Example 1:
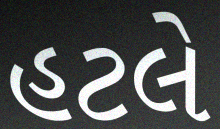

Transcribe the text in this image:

હટલે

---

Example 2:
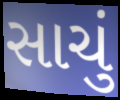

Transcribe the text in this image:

સાચું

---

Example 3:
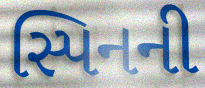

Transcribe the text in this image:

સ્પિનની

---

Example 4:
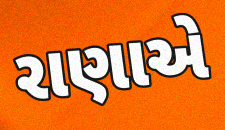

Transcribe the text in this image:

રાણાએ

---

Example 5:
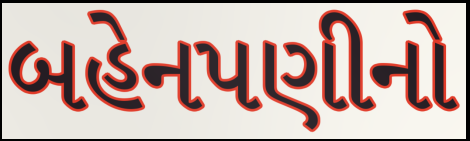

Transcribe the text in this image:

બહેનપણીનો